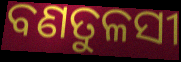
ବଣତୁଳସୀ